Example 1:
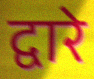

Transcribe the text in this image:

द्वारे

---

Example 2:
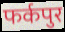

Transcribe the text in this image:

फर्कपुर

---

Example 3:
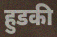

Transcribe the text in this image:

हुडकी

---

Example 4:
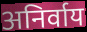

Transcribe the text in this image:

अनिर्वाय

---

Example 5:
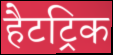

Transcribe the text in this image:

हैटट्रिक